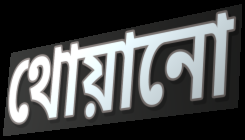
থোয়ানো